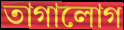
তাগালোগ